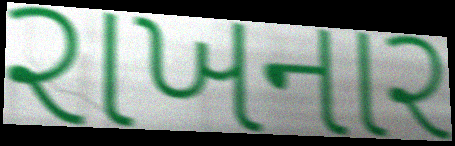
રાખનાર